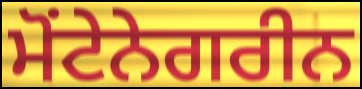
ਮੋਂਟੇਨੇਗਰੀਨ